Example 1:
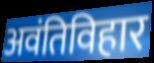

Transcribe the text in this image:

अवंतिविहार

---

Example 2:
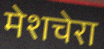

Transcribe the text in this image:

मेशचेरा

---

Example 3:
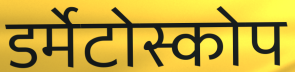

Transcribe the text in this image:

डर्मेटोस्कोप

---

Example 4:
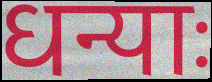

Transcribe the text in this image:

धन्याः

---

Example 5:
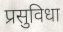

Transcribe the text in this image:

प्रसुविधा